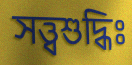
সত্ত্বশুদ্ধিঃ